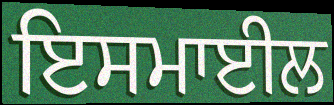
ਇਸਮਾਈਲ